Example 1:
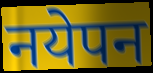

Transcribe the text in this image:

नयेपन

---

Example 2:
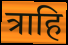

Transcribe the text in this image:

त्राहि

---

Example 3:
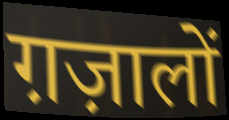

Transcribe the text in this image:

ग़ज़ालों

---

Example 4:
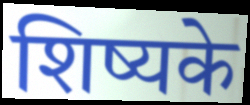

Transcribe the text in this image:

शिष्यके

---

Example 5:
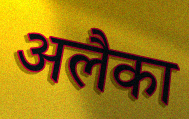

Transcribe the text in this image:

अलैका